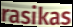
rasikas